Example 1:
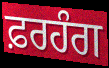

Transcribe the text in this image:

ਫ਼ਰਹੰਗ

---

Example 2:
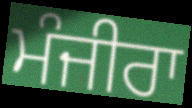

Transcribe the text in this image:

ਮੰਜੀਰਾ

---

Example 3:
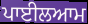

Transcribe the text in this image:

ਪਾਈਲਆਮ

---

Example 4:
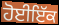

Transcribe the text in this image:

ਹੋਈਇੱਕ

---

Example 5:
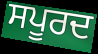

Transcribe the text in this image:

ਸਪੂਰਦ